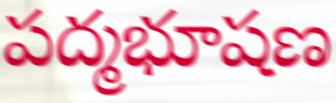
పద్మభూషణ